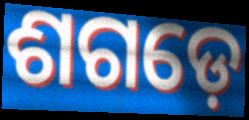
ଶଗଡ଼େ